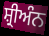
ਸ਼੍ਰੀਅੰਨ